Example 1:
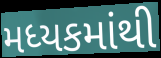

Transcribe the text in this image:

મધ્યકમાંથી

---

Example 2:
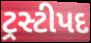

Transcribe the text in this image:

ટ્રસ્ટીપદ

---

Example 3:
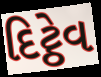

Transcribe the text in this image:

દિટ્ઠેવ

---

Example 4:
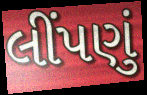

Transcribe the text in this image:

લીંપણું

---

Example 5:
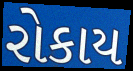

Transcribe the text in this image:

રોકાય